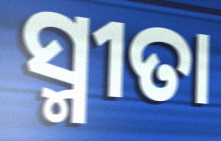
ସ୍ମୀତା